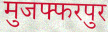
मुजफ्फरपुर